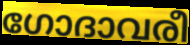
ഗോദാവരീ